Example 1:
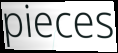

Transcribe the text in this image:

pieces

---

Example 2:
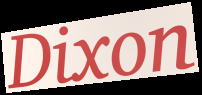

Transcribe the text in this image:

Dixon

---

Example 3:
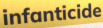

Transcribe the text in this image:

infanticide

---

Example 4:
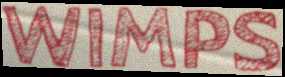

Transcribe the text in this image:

WIMPS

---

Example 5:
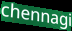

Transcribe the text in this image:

chennagi